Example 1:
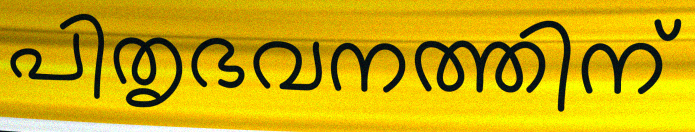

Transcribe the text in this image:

പിതൃഭവനത്തിന്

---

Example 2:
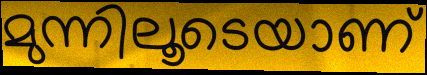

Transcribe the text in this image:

മുന്നിലൂടെയാണ്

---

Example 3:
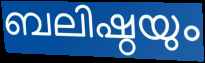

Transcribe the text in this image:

ബലിഷ്ഠയും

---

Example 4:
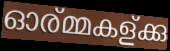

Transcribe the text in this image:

ഓര്മ്മകള്ക്കു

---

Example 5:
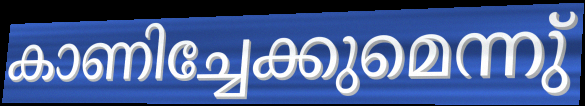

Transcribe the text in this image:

കാണിച്ചേക്കുമെന്നു്